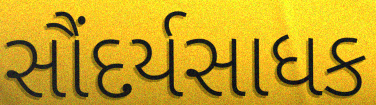
સૌંદર્યસાધક